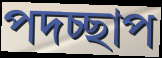
পদচ্ছাপ